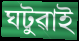
ঘটুৱাই